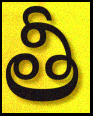
తీ